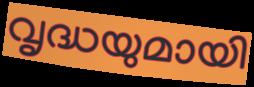
വൃദ്ധയുമായി